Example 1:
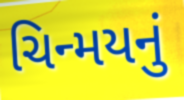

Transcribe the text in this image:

ચિન્મયનું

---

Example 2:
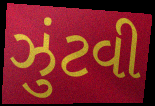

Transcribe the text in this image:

ઝુંટવી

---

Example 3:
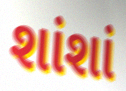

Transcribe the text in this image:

શાંશાં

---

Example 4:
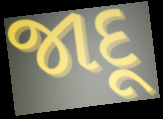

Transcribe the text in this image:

જાદૂ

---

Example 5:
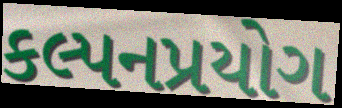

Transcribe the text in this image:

કલ્પનપ્રયોગ